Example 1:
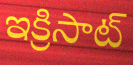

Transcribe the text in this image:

ఇక్రిసాట్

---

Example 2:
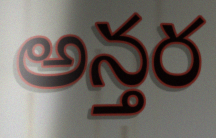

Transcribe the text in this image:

అన్తర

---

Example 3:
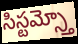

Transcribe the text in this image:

సిస్టమ్స్తో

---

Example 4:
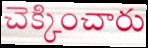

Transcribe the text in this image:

చెక్కించారు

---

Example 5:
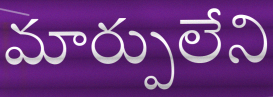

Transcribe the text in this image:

మార్పులేని